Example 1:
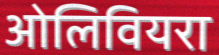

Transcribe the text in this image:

ओलिवियरा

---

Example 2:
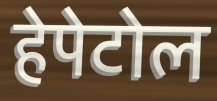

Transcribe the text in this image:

हेपेटोल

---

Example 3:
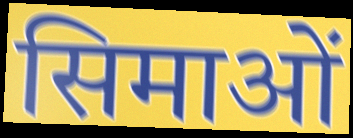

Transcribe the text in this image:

सिमाओं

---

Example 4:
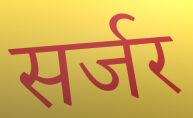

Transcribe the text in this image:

सर्जर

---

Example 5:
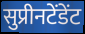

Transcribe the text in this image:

सुप्रीनटेंडेंट